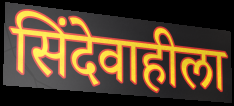
सिंदेवाहीला